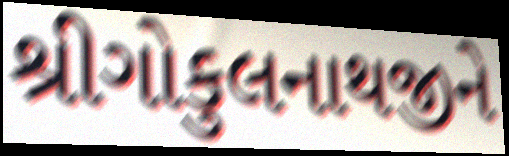
શ્રીગોકુલનાથજીને